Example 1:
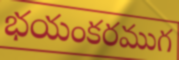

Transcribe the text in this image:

భయంకరముగ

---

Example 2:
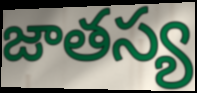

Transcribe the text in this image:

జాతస్య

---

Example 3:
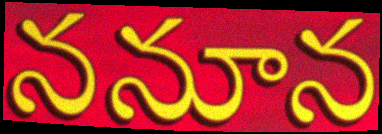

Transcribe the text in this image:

ననూన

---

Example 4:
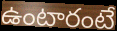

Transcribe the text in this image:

ఉంటారంటే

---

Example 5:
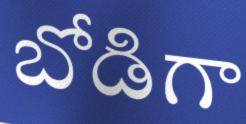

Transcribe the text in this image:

బోడిగా